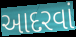
આદરવાં